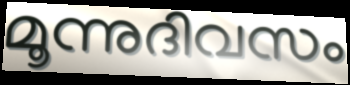
മൂന്നുദിവസം